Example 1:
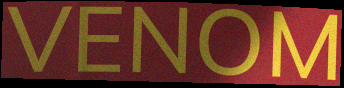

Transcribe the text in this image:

VENOM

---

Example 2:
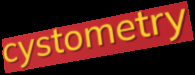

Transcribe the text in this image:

cystometry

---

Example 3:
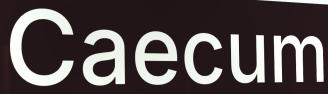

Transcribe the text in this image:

Caecum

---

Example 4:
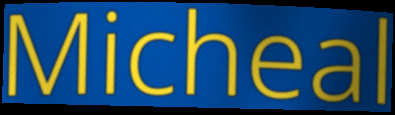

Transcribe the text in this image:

Micheal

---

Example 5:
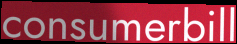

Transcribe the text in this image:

consumerbill